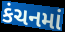
કંચનમાં